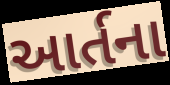
આર્તના